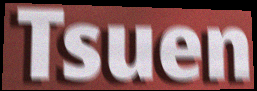
Tsuen